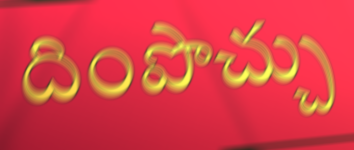
దింపొచ్చు